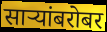
साऱ्यांबरोबर